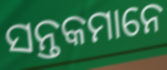
ସନ୍ତକମାନେ